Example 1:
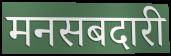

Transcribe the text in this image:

मनसबदारी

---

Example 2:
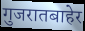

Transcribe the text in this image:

गुजरातबाहेर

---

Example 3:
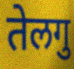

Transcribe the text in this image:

तेलगु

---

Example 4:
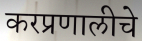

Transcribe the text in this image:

करप्रणालीचे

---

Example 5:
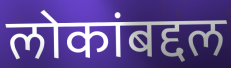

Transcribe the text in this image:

लोकांबद्दल